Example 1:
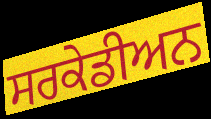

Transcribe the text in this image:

ਸਰਕੇਡੀਅਨ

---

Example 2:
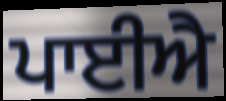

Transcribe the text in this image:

ਪਾਈਐ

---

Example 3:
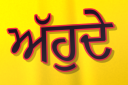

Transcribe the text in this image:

ਅੱਹੁਦੇ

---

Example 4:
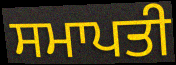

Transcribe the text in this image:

ਸਮਾਪਤੀ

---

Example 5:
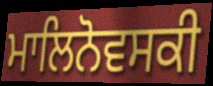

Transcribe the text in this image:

ਮਾਲਿਨੋਵਸਕੀ